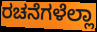
ರಚನೆಗಳೆಲ್ಲಾ